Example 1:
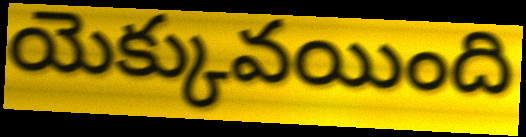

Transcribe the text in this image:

యెక్కువయింది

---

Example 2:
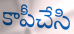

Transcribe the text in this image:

కాపీచేసి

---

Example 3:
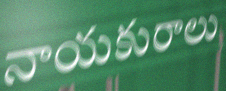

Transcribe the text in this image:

నాయకురాలు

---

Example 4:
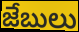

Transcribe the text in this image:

జేబులు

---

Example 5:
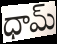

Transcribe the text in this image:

ధామ్